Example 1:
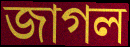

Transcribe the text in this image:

জাগল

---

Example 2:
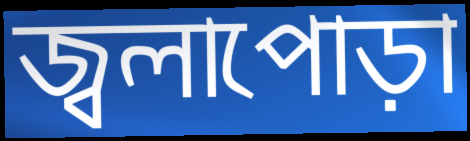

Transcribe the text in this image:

জ্বলাপোড়া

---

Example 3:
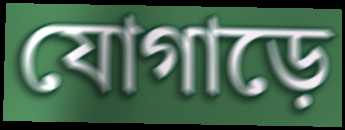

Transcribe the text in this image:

যোগাড়ে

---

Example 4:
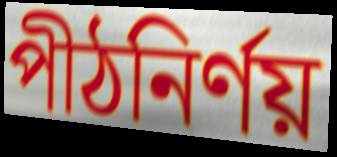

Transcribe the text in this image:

পীঠনির্ণয়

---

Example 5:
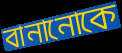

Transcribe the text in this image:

বানানোকে